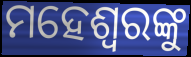
ମହେଶ୍ଵରଙ୍କୁ